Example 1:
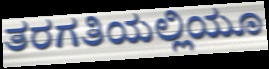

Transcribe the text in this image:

ತರಗತಿಯಲ್ಲಿಯೂ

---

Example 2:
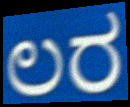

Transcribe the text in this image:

ಲರ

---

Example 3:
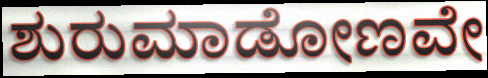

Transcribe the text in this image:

ಶುರುಮಾಡೋಣವೇ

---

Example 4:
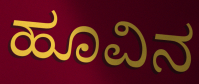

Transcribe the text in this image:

ಹೂವಿನ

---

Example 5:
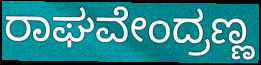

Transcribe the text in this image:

ರಾಘವೇಂದ್ರಣ್ಣ